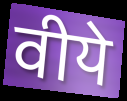
वीये